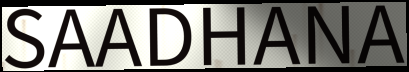
SAADHANA